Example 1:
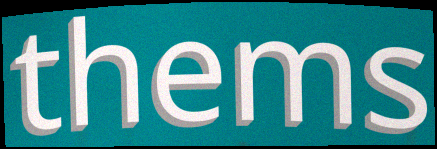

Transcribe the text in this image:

thems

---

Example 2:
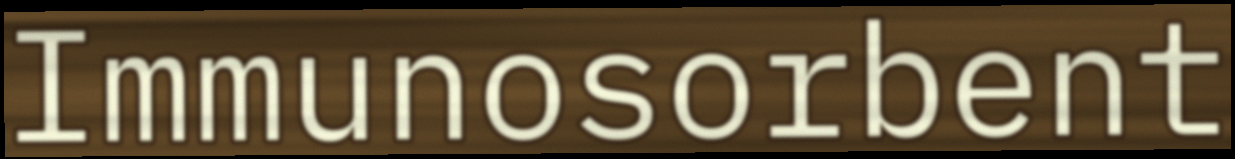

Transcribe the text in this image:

Immunosorbent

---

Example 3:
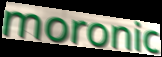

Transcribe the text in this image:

moronic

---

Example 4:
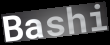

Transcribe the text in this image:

Bashi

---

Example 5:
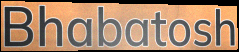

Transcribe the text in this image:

Bhabatosh